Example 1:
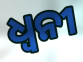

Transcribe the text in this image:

ଧ୍ବନୀ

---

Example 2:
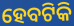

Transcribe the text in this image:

ହେବଟିକି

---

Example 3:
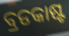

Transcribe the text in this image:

ବ୍ରଡକାଷ୍ଟ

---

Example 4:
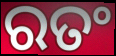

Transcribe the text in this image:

ରତଂ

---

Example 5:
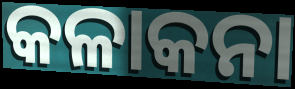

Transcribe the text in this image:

କଳାକନା